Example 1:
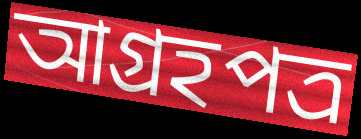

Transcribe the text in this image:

আগ্রহপত্র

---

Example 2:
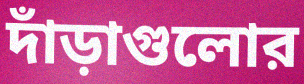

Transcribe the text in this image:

দাঁড়াগুলোর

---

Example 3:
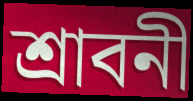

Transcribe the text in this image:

শ্রাবনী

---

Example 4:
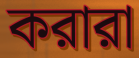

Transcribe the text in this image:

করারা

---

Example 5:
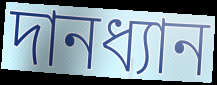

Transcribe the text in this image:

দানধ্যান